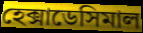
হেক্সাডেসিমাল